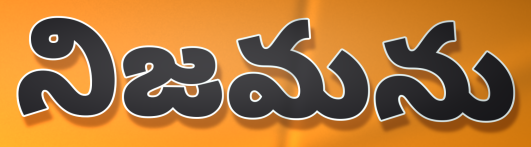
నిజమను